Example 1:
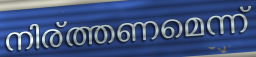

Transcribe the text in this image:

നിര്ത്തണമെന്ന്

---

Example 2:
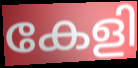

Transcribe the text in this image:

കേളി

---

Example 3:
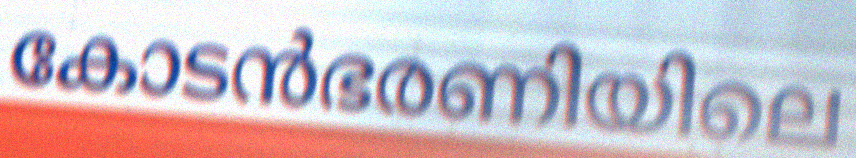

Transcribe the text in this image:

കോടൻഭരണിയിലെ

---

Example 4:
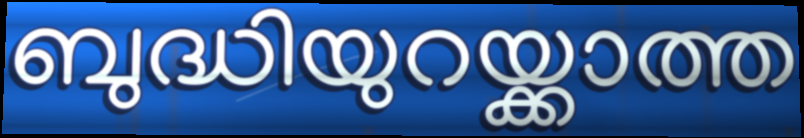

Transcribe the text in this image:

ബുദ്ധിയുറയ്ക്കാത്ത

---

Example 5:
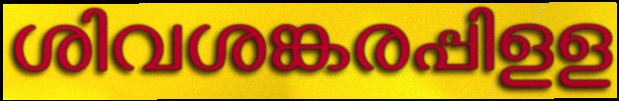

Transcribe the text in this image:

ശിവശങ്കരപ്പിളള